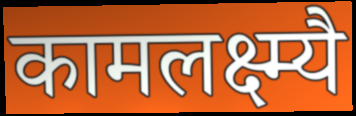
कामलक्ष्म्यै